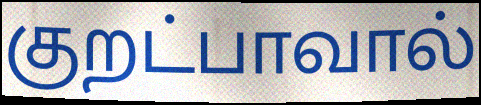
குறட்பாவால்